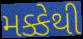
મક્કેથી